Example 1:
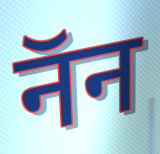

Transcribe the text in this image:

नॅन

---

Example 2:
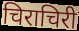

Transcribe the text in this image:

चिराचिरी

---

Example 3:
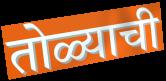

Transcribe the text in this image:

तोळ्याची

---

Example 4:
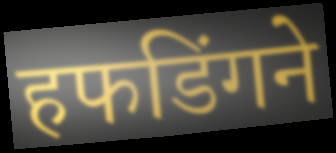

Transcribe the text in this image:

हफडिंगने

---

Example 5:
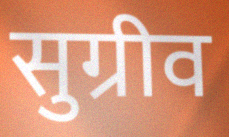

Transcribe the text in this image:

सुग्रीव